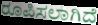
ರೂಪಿಸಲಾಗಿದೆ